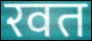
रवत